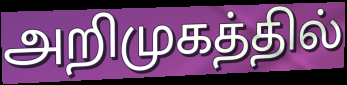
அறிமுகத்தில்